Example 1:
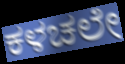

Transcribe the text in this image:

ಕಳಚಲೇ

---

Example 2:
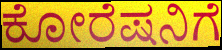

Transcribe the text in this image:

ಕೋರೆಷನಿಗೆ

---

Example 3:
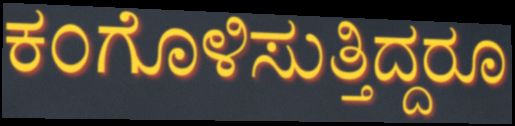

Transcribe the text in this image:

ಕಂಗೊಳಿಸುತ್ತಿದ್ದರೂ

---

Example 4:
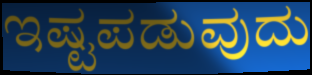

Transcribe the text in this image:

ಇಷ್ಟಪಡುವುದು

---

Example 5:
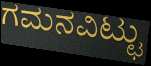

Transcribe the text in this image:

ಗಮನವಿಟ್ಟು